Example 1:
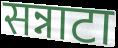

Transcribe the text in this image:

सन्नाटा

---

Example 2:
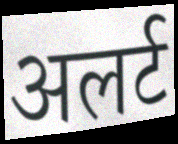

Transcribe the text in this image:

अलर्ट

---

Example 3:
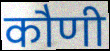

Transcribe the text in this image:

कौणी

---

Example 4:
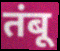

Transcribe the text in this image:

तंबू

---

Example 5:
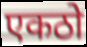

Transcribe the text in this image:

एकठो